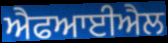
ਐਫਆਈਐਲ